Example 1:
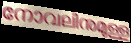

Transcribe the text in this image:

നോവലിനുമുള്ള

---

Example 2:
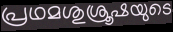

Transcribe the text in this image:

പ്രഥമശുശ്രൂഷയുടെ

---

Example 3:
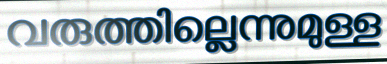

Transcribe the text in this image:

വരുത്തില്ലെന്നുമുള്ള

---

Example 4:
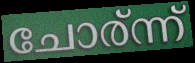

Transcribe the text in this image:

ചോര്ന്ന്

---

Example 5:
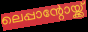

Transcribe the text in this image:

ലെപ്പാന്റോയ്ക്ക്